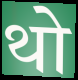
थो